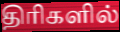
திரிகளில்